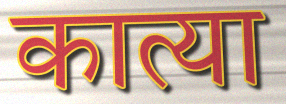
कात्या